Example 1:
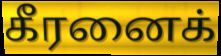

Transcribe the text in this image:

கீரனைக்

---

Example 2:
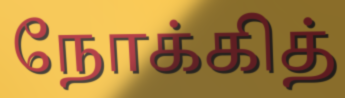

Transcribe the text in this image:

நோக்கித்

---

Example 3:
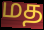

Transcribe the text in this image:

மத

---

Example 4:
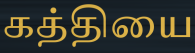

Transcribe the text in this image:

கத்தியை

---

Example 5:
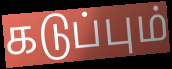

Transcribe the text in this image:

கடுப்பும்